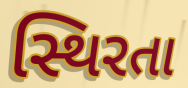
સ્થિરતા